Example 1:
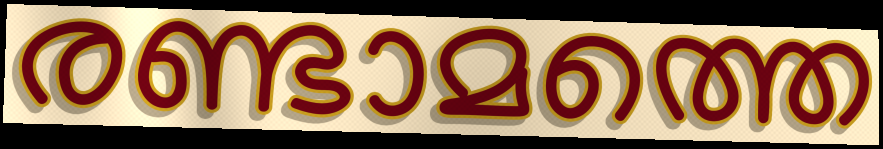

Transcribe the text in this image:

രണ്ടാമത്തെ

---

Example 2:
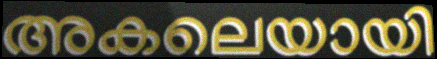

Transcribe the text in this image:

അകലെയായി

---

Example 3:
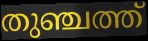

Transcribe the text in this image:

തുഞ്ചത്ത്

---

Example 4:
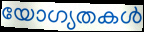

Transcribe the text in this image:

യോഗ്യതകൾ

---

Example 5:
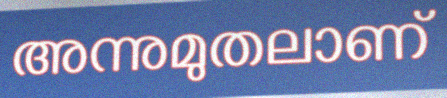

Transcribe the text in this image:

അന്നുമുതലാണ്